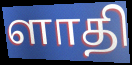
ளாதி